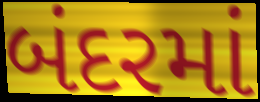
બંદરમાં